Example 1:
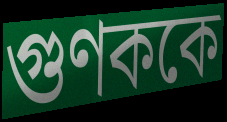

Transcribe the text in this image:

গুণককে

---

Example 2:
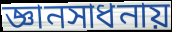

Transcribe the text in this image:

জ্ঞানসাধনায়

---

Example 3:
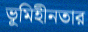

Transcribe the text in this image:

ভূমিহীনতার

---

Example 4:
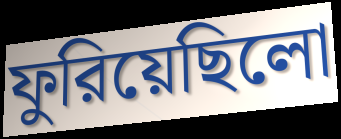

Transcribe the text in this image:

ফুরিয়েছিলো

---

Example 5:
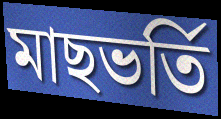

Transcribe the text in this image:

মাছভর্তি